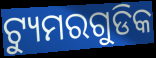
ଟ୍ୟୁମରଗୁଡିକ